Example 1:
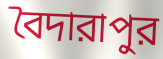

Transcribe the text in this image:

বৈদারাপুর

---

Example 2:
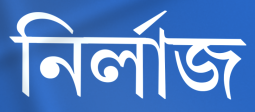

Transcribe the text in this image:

নির্লাজ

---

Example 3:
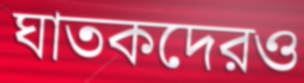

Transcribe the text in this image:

ঘাতকদেরও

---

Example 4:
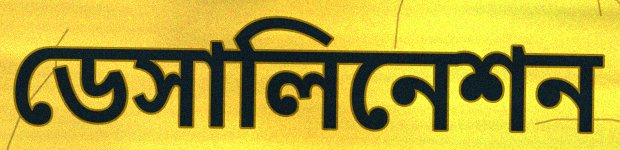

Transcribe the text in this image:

ডেসালিনেশন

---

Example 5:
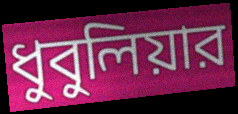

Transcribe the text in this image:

ধুবুলিয়ার